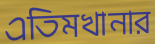
এতিমখানার